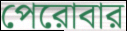
পেরোবার